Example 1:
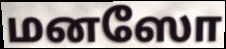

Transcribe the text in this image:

மனஸோ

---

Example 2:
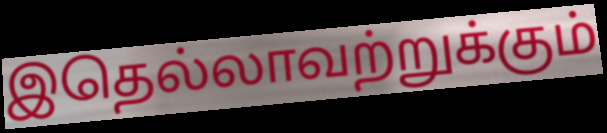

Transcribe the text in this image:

இதெல்லாவற்றுக்கும்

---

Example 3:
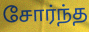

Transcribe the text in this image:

சோர்ந்த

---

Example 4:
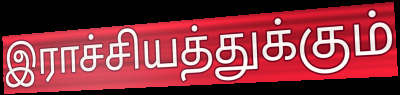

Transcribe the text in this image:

இராச்சியத்துக்கும்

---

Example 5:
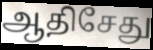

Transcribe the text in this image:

ஆதிசேது